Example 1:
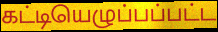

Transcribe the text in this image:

கட்டியெழுப்பப்பட்ட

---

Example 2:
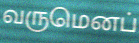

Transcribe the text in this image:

வருமெனப்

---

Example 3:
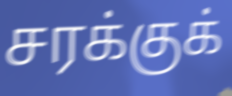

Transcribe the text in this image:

சரக்குக்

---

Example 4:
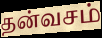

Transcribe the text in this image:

தன்வசம்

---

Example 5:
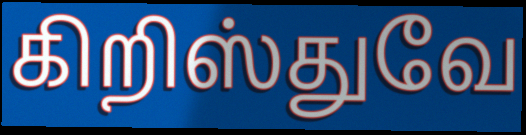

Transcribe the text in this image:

கிறிஸ்துவே